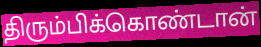
திரும்பிக்கொண்டான்